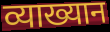
व्‍याख्‍यान